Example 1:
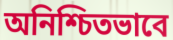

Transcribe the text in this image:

অনিশ্চিতভাবে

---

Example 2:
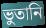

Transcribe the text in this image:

ভুতানি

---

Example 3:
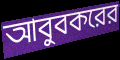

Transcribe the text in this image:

আবুবকরের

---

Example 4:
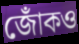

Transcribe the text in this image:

জোঁকও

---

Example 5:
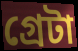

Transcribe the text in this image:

গ্রেটা